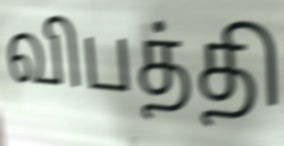
விபத்தி